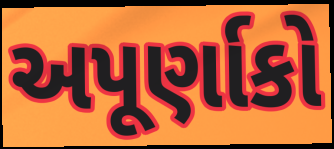
અપૂર્ણાકો